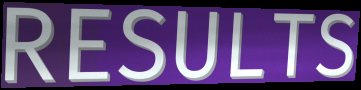
RESULTS